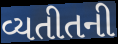
વ્યતીતની